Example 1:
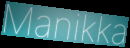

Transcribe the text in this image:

Manikka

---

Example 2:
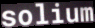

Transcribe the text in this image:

solium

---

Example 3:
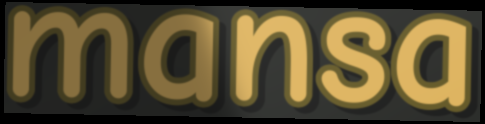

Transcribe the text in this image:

mansa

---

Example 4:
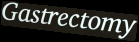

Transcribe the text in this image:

Gastrectomy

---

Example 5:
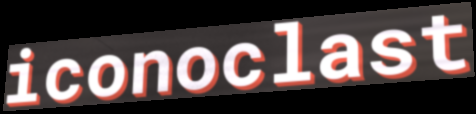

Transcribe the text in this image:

iconoclast